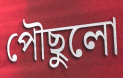
পৌছুলো